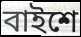
বাইশে